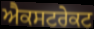
ਐਕਸਟਰੇਕਟ